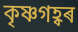
কৃষ্ণগহ্বৰ